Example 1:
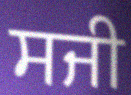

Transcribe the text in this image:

ਸਜੀ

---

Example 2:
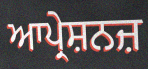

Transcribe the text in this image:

ਆਪ੍ਰੇਸ਼ਨਜ਼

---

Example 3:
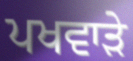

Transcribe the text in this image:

ਪਖਵਾੜੇ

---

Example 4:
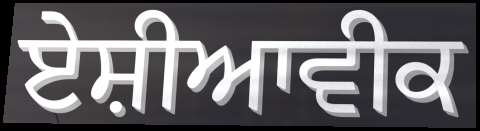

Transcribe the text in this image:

ਏਸ਼ੀਆਵੀਕ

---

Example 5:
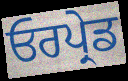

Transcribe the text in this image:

ਓਰਪ੍ਰੇਡ